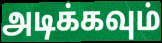
அடிக்கவும்